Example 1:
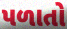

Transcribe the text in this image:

પળાતો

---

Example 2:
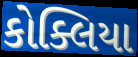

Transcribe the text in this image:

કોક્લિયા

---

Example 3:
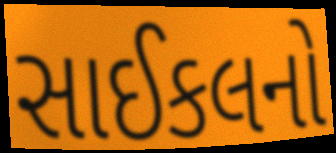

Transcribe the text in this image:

સાઈકલનો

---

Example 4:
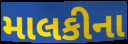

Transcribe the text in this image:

માલકીના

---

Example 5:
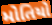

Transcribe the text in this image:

મોતિયો